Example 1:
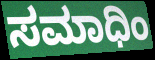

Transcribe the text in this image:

ಸಮಾಧಿಂ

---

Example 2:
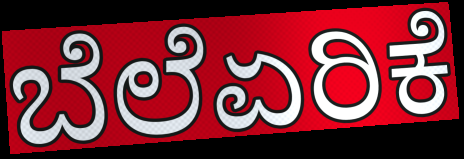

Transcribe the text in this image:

ಬೆಲೆಏರಿಕೆ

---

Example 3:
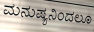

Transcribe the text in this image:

ಮನುಷ್ಯನಿಂದಲೂ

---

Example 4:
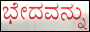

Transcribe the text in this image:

ಭೇದವನ್ನು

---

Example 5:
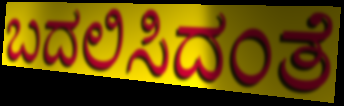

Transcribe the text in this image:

ಬದಲಿಸಿದಂತೆ